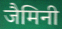
जैमिनी